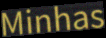
Minhas